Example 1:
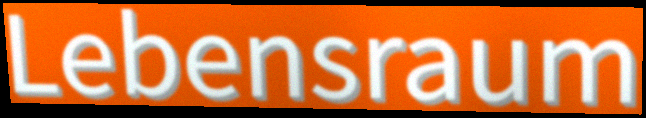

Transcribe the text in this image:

Lebensraum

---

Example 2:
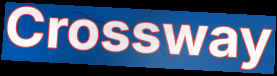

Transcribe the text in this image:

Crossway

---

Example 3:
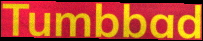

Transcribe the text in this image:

Tumbbad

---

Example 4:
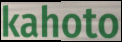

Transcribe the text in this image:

kahoto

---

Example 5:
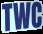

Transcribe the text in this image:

TWC